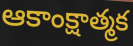
ఆకాంక్షాత్మక